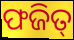
ଫଜିତ୍